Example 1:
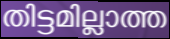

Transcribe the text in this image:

തിട്ടമില്ലാത്ത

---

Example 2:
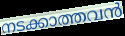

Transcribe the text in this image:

നടക്കാത്തവൻ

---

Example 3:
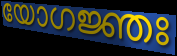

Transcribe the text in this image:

യോഗജ്ഞഃ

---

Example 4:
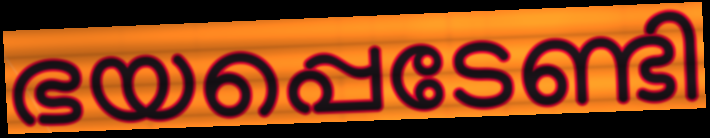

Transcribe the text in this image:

ഭയപ്പെടേണ്ടി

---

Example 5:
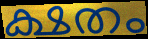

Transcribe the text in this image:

ക്ഷതം